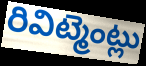
రివిట్మెంట్లు